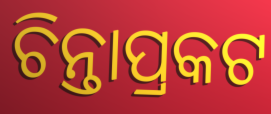
ଚିନ୍ତାପ୍ରକଟ